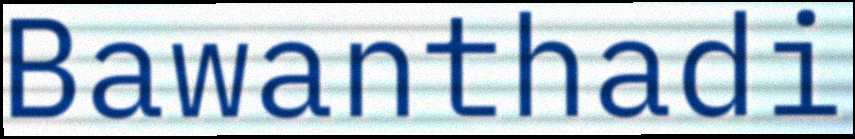
Bawanthadi